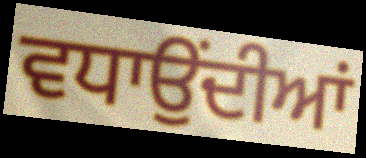
ਵਧਾਉਂਦੀਆਂ